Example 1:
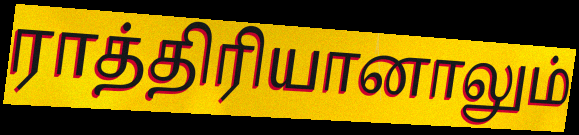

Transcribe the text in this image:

ராத்திரியானாலும்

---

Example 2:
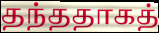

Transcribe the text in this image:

தந்ததாகத்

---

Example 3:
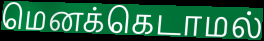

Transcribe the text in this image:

மெனக்கெடாமல்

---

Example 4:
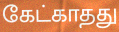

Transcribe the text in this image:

கேட்காதது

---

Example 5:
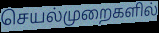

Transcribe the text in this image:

செயல்முறைகளில்